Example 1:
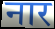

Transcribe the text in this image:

नार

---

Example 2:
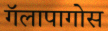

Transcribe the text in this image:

गॅलापागोस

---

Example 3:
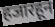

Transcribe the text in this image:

हजारहून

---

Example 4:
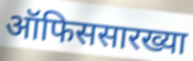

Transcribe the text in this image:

ऑफिससारख्या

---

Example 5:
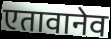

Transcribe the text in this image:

एतावानेव